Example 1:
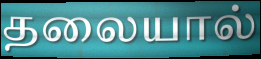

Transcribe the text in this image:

தலையால்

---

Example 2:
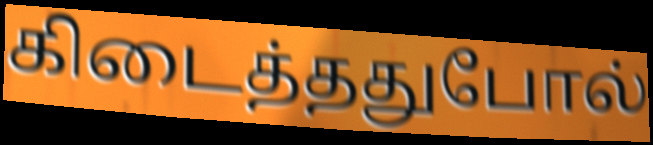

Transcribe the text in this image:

கிடைத்ததுபோல்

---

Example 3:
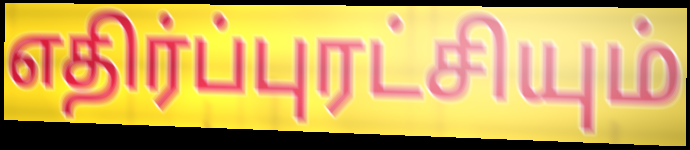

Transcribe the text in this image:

எதிர்ப்புரட்சியும்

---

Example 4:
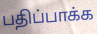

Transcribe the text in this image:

பதிப்பாக்க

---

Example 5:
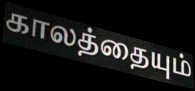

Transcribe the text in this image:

காலத்தையும்